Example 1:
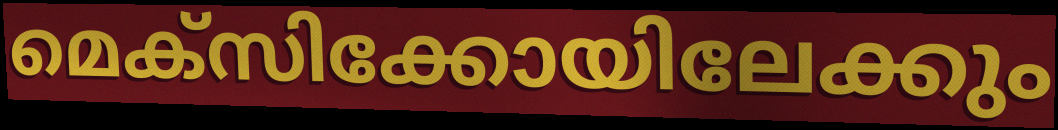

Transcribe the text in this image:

മെക്സിക്കോയിലേക്കും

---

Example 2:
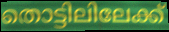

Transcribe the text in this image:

തൊട്ടിലിലേക്ക്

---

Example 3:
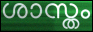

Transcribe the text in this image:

ശാസ്തം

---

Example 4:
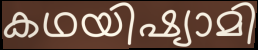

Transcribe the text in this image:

കഥയിഷ്യാമി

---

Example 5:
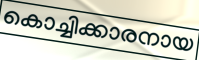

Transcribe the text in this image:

കൊച്ചിക്കാരനായ